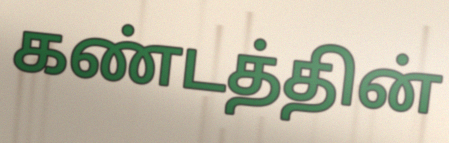
கண்டத்தின்